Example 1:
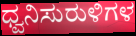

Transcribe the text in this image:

ಧ್ವನಿಸುರುಳಿಗಳ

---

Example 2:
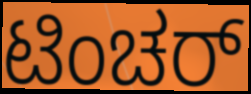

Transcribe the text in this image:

ಟಿಂಚರ್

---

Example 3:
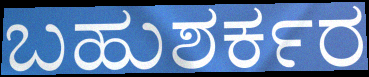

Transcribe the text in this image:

ಬಹುಶರ್ಕರ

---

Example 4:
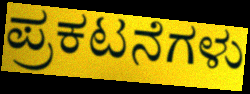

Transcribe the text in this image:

ಪ್ರಕಟನೆಗಳು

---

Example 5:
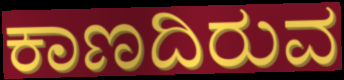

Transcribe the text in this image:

ಕಾಣದಿರುವ